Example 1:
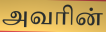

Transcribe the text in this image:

அவரின்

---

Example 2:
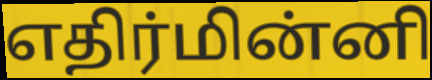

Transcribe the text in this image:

எதிர்மின்னி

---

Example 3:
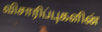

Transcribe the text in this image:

விசாரிப்புகளின்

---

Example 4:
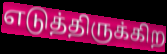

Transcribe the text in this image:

எடுத்திருக்கிற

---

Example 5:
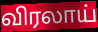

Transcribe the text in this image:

விரலாய்